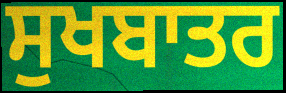
ਸੁਖਬਾਤਰ